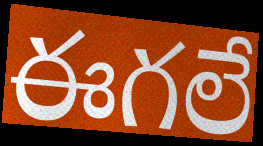
ఈగలే